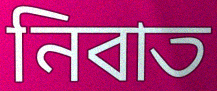
নিবাত